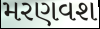
મરણવશ